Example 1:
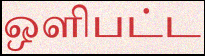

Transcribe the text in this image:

ஒளிபட்ட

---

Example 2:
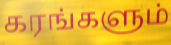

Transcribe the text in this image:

கரங்களும்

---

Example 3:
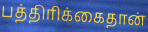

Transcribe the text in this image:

பத்திரிக்கைதான்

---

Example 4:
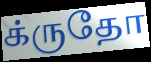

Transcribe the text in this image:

க்ருதோ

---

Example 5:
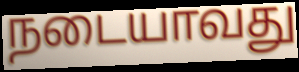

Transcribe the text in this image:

நடையாவது